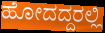
ಹೋದದ್ದರಲ್ಲಿ